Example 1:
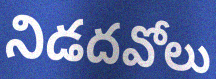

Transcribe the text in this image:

నిడదవోలు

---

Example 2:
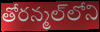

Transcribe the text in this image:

తోరన్మల్‌లోని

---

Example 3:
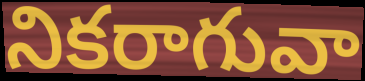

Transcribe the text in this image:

నికరాగువా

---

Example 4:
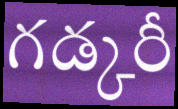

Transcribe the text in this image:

గడ్కరీ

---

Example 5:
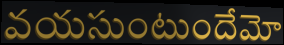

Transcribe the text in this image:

వయసుంటుందేమో